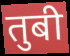
तुबी